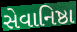
સેવાનિષ્ઠા